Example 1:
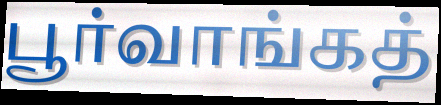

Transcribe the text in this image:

பூர்வாங்கத்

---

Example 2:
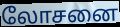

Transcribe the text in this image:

லோசனை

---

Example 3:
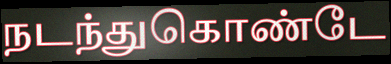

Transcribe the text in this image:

நடந்துகொண்டே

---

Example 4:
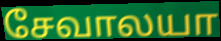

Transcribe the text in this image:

சேவாலயா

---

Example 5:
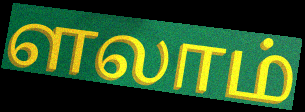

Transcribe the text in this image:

ளலாம்